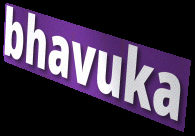
bhavuka